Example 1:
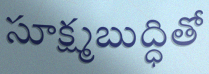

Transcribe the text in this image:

సూక్ష్మబుద్ధితో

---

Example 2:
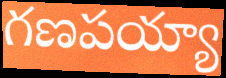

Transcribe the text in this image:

గణపయ్యా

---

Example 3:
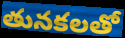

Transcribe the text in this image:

తునకలతో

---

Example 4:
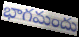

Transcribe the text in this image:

భాగమందు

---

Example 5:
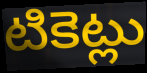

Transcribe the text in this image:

టికెట్లు